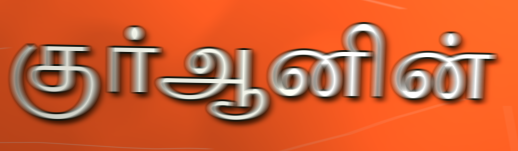
குர்ஆனின்